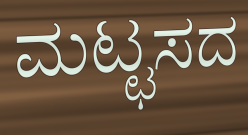
ಮಟ್ಟಸದ